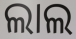
ଲାଲ